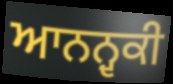
ਆਨਨ੍ਦਕੀ